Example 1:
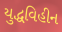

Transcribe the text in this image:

યુદ્ધવિહીન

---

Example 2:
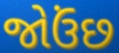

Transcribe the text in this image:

જોઉંછ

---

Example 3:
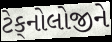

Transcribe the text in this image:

ટેક્‌નોલોજીને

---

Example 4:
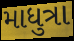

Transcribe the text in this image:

માધુત્રા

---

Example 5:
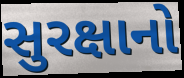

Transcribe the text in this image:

સુરક્ષાનો